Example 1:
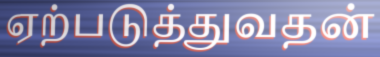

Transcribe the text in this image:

ஏற்படுத்துவதன்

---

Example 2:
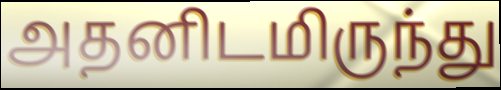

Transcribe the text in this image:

அதனிடமிருந்து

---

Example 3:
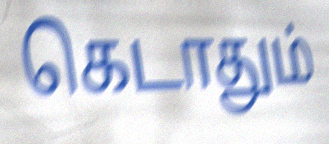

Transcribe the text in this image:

கெடாதும்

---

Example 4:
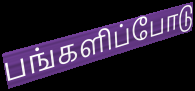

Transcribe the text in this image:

பங்களிப்போடு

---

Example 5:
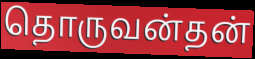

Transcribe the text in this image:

தொருவன்தன்